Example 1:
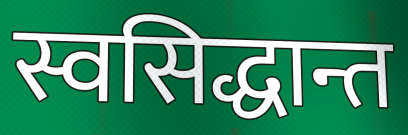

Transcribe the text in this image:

स्वसिद्धान्त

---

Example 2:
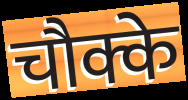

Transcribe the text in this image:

चौक्के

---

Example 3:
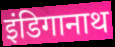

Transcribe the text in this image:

इंडिगानाथ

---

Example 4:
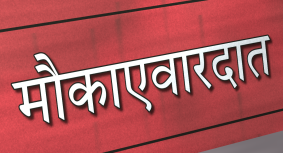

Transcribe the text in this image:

मौकाएवारदात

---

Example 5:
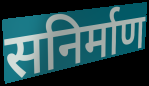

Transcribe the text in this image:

सनिर्माण